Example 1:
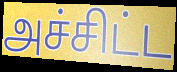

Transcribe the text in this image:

அச்சிட்ட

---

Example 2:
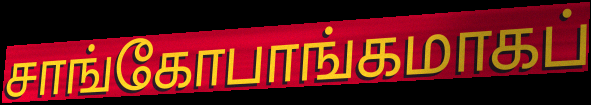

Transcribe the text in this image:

சாங்கோபாங்கமாகப்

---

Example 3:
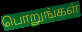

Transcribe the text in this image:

பொறுங்கள்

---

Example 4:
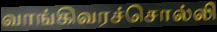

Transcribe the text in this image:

வாங்கிவரச்சொல்லி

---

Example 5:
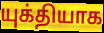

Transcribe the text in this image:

யுக்தியாக